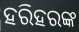
ହରିହରଙ୍କ